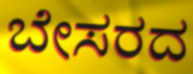
ಬೇಸರದ